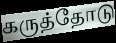
கருத்தோடு